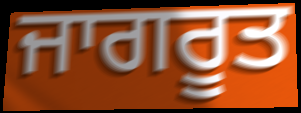
ਜਾਗਰੂਤ